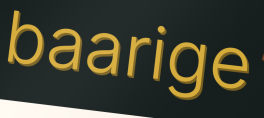
baarige